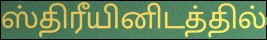
ஸ்திரீயினிடத்தில்